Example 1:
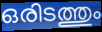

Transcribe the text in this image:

ഒരിടത്തും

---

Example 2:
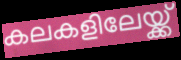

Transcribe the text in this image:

കലകളിലേയ്ക്ക്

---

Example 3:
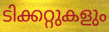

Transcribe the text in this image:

ടിക്കറ്റുകളും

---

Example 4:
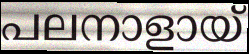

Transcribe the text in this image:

പലനാളായ്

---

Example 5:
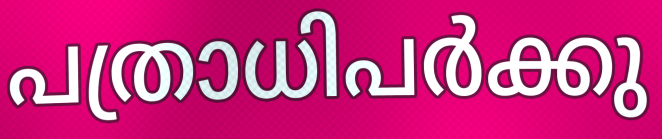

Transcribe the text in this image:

പത്രാധിപർക്കു